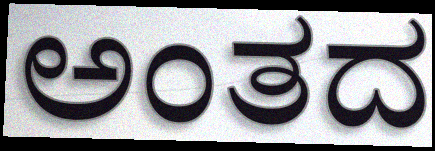
ಅಂತದ